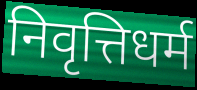
निवृत्तिधर्म